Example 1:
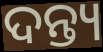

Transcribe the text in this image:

ଦନ୍ତ୍ୟ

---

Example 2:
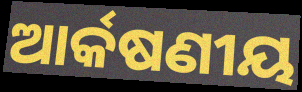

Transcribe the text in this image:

ଆର୍କଷଣୀୟ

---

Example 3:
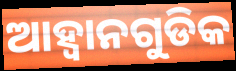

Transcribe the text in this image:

ଆହ୍ୱାନଗୁଡିକ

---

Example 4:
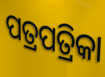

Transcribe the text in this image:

ପତ୍ରପତ୍ରିକା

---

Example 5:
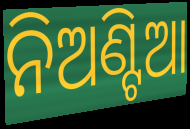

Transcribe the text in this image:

ନିଅଣ୍ଟିଆ